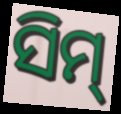
ସିମ୍